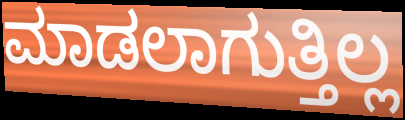
ಮಾಡಲಾಗುತ್ತಿಲ್ಲ